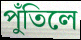
পুঁতিলে